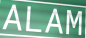
ALAM